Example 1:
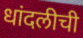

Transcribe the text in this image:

धांदलीची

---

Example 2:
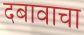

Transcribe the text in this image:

दबावाचा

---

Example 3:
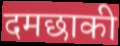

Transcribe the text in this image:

दमछाकी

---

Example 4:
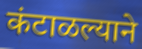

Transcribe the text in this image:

कंटाळल्याने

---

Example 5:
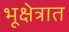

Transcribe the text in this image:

भूक्षेत्रात